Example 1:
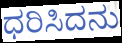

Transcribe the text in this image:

ಧರಿಸಿದನು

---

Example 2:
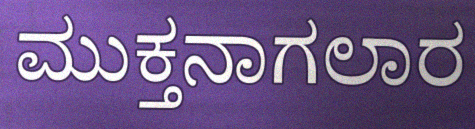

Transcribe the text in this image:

ಮುಕ್ತನಾಗಲಾರ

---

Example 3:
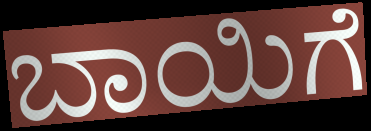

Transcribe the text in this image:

ಬಾಯಿಗೆ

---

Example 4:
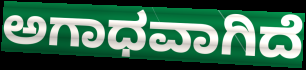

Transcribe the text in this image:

ಅಗಾಧವಾಗಿದೆ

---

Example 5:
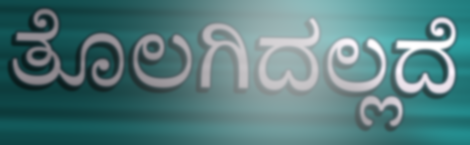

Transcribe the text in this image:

ತೊಲಗಿದಲ್ಲದೆ